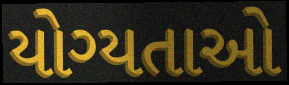
યોગ્યતાઓ